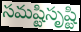
సమష్టిసృష్టి